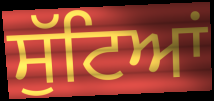
ਸੁੱਟਿਆਂ